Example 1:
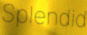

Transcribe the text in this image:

Splendid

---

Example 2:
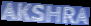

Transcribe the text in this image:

AKSHRA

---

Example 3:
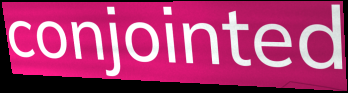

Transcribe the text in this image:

conjointed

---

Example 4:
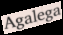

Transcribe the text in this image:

Agalega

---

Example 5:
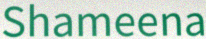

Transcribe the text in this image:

Shameena